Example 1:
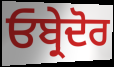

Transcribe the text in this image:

ਓਬ੍ਰੇਦੋਰ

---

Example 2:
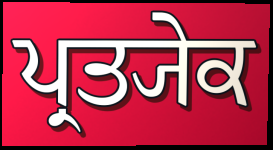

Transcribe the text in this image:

ਪ੍ਰਤ੍ਯੇਕ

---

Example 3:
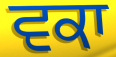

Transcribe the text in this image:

ਵਕਾ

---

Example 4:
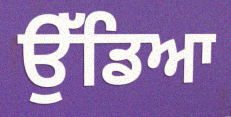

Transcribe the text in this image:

ਉੱਡਿਆ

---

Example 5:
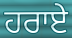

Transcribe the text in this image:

ਹਰਾਏ